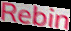
Rebin